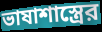
ভাষাশাস্ত্রের